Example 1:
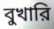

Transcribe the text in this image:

বুখারি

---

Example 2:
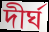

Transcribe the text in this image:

দীর্ঘ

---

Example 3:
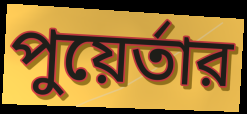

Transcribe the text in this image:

পুয়ের্তার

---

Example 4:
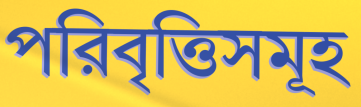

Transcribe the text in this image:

পরিবৃত্তিসমূহ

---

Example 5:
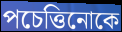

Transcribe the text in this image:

পচেত্তিনোকে